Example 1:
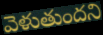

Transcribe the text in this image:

వెళుతుందని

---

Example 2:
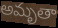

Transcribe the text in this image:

అమృతా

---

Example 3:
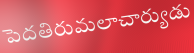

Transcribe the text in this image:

పెదతిరుమలాచార్యుడు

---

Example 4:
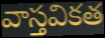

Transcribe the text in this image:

వాస్తవికత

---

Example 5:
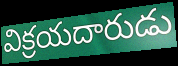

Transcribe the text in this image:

విక్రయదారుడు